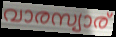
വാരസ്യാര്